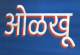
ओळखू